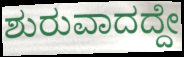
ಶುರುವಾದದ್ದೇ